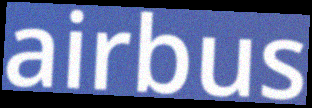
airbus